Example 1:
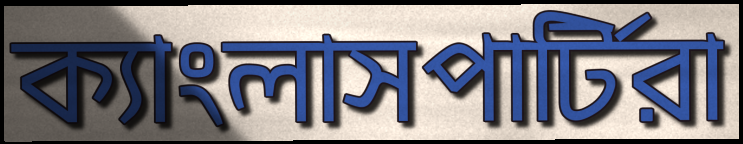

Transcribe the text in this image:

ক্যাংলাসপার্টিরা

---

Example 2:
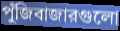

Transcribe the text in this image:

পুঁজিবাজারগুলো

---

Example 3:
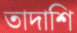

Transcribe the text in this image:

তাদাশি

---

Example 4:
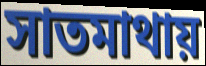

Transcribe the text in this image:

সাতমাথায়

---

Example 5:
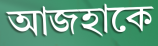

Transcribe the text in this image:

আজহাকে